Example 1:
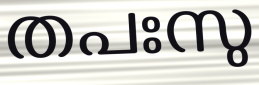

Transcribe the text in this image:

തപഃസു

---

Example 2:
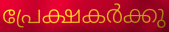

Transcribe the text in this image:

പ്രേക്ഷകർക്കു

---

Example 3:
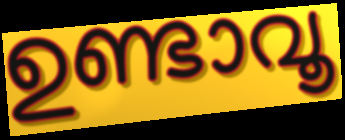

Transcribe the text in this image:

ഉണ്ടാവൂ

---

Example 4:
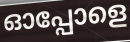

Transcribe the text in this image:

ഓപ്പോളെ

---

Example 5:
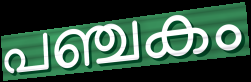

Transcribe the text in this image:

പഞ്ചകം